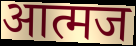
आत्मज